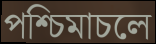
পশ্চিমাচলে